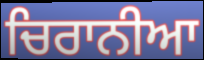
ਚਿਰਾਨੀਆ